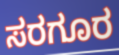
ಸರಗೂರ